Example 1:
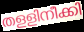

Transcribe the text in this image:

തളളിനീക്കി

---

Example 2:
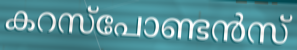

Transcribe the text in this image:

കറസ്പോണ്ടൻസ്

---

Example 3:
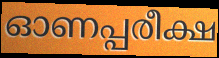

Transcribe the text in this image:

ഓണപ്പരീക്ഷ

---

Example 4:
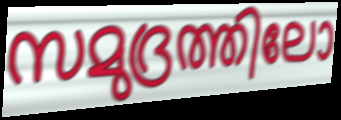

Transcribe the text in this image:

സമുദ്രത്തിലോ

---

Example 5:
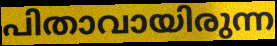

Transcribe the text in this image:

പിതാവായിരുന്ന